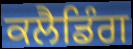
ਕਲੈਡਿੰਗ